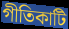
গীতিকাটি